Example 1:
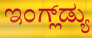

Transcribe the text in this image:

ಇಂಗ್ಲ್‌ಡ್ಯು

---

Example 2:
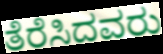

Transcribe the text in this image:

ತೆರೆಸಿದವರು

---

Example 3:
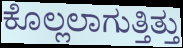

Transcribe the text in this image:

ಕೊಲ್ಲಲಾಗುತ್ತಿತ್ತು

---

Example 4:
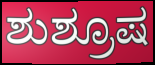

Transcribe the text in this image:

ಶುಶ್ರೂಷ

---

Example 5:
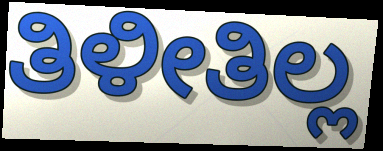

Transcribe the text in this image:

ತಿಳೀತಿಲ್ಲ